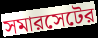
সমারসেটের